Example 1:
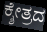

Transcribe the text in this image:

ಕ್ಶೇತ್ರದ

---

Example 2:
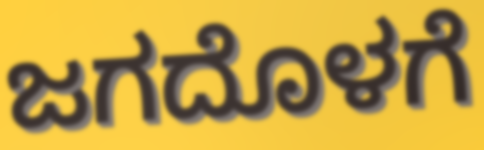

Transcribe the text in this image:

ಜಗದೊಳಗೆ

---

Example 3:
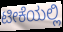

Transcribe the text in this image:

ಟೀಕೆಯಲ್ಲಿ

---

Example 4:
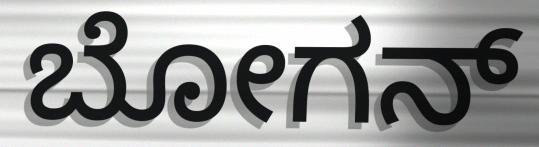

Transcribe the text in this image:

ಬೋಗನ್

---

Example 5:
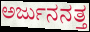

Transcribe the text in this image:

ಅರ್ಜುನನತ್ತ